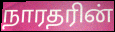
நாரதரின்